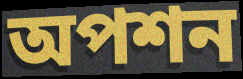
অপশন